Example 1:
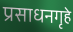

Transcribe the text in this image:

प्रसाधनगृहे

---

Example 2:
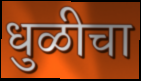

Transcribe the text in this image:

धुळीचा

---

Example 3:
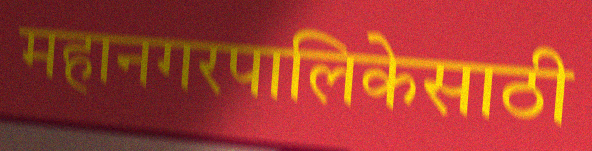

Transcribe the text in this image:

महानगरपालिकेसाठी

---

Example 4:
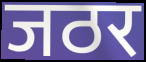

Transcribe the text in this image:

जठर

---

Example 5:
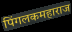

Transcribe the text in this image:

पिंगलकमहाराज